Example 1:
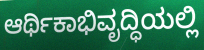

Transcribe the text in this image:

ಆರ್ಥಿಕಾಭಿವೃದ್ಧಿಯಲ್ಲಿ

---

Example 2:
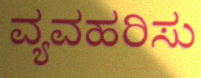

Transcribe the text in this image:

ವ್ಯವಹರಿಸು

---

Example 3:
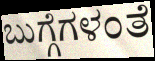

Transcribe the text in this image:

ಬುಗ್ಗೆಗಳಂತೆ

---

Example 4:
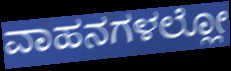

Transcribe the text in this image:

ವಾಹನಗಳಲ್ಲೋ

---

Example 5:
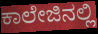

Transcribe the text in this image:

ಕಾಲೇಜಿನಲ್ಲಿ